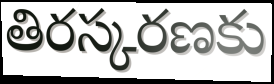
తిరస్కరణకు